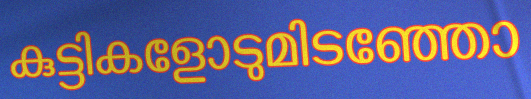
കുട്ടികളോടുമിടഞ്ഞോ